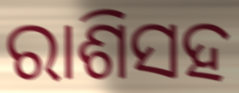
ରାଶିସହ